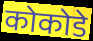
कोकोडे